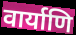
वार्याणि